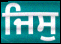
ਜਿਸੁ